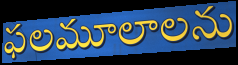
ఫలమూలాలను